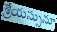
శ్రేయస్సునూ